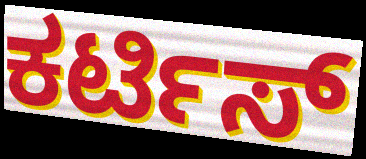
ಕರ್ಟಿಸ್